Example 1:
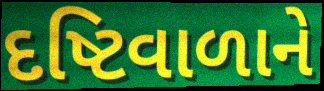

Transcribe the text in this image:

દષ્ટિવાળાને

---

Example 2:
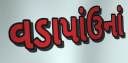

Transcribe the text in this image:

વડાપાંઉનાં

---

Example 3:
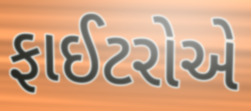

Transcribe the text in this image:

ફાઈટરોએ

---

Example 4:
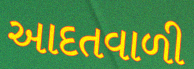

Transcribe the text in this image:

આદતવાળી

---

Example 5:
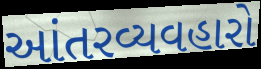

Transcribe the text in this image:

આંતરવ્યવહારો